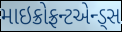
માઇક્રોફ્રન્ટએન્ડ્સ